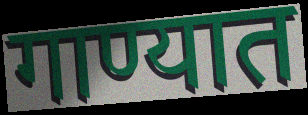
गाण्यात